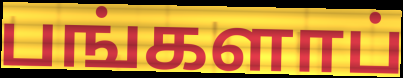
பங்களாப்